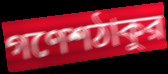
গণেশঠাকুর